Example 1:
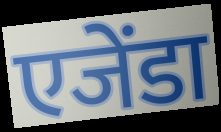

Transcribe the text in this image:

एजेंडा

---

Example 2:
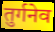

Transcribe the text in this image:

तुर्गनेव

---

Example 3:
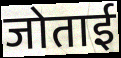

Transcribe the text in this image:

जोताई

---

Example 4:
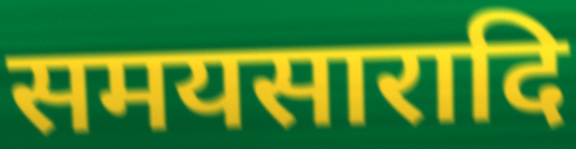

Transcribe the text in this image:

समयसारादि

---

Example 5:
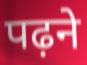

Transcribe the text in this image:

पढ़ने